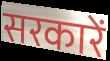
सरकारें